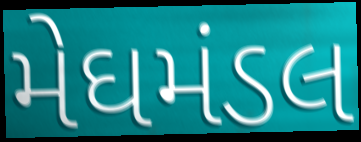
મેઘમંડલ